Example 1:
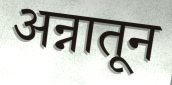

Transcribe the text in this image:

अन्नातून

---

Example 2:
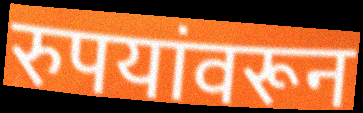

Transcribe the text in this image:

रुपयांवरून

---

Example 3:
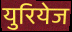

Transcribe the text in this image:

युरियेज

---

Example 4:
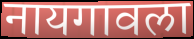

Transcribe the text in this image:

नायगावला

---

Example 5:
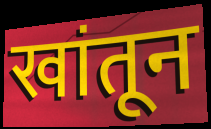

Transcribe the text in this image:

खांतून